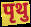
पृथु